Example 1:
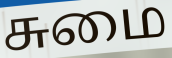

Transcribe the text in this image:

சுமை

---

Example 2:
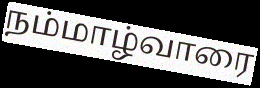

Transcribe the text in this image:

நம்மாழ்வாரை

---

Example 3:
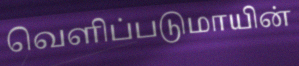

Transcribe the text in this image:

வெளிப்படுமாயின்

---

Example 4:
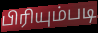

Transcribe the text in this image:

பிரியும்படி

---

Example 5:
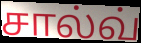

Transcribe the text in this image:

சால்வ்